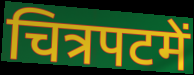
चित्रपटमें